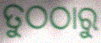
ତୁଠଠାରୁ